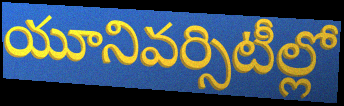
యూనివర్సిటీల్లో